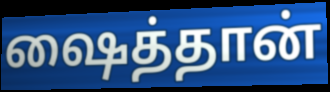
ஷைத்தான்